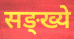
सङ्ख्ये